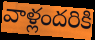
వాళ్లందరికి